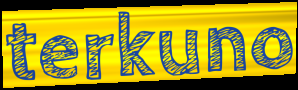
terkuno